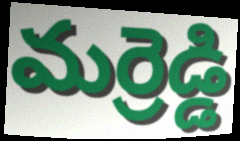
మర్రెడ్డి